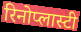
रिनोप्लास्टी